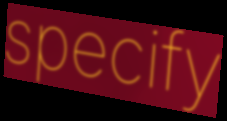
specify